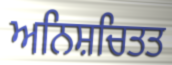
ਅਨਿਸ਼ਚਿਤਤ